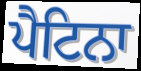
ਪੈਟਿਨਾ